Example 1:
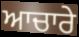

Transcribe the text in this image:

ਆਚਾਰੇ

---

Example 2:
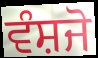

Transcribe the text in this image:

ਵੰਸ਼ਜੋ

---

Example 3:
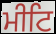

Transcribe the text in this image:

ਮੀਟਿ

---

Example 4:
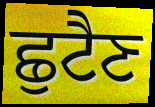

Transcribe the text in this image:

ਛੁਟੈਣ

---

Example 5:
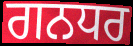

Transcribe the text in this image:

ਗਨਧਰ